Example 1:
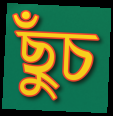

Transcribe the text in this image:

ছুঁচ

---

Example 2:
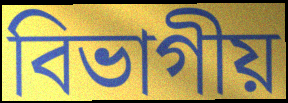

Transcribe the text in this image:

বিভাগীয়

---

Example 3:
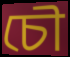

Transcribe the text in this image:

চৌ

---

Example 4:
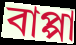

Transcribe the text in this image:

বাপ্পা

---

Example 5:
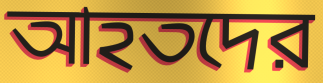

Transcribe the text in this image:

আহতদের